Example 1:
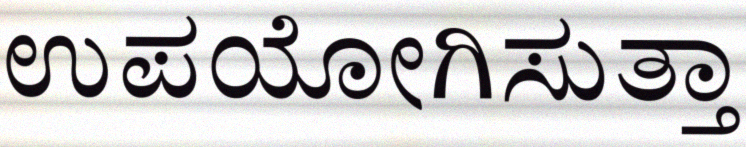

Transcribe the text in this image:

ಉಪಯೋಗಿಸುತ್ತಾ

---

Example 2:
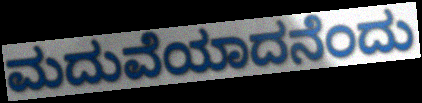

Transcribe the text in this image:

ಮದುವೆಯಾದನೆಂದು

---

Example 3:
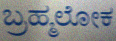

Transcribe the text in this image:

ಬ್ರಹ್ಮಲೋಕ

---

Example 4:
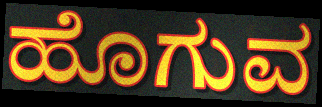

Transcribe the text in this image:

ಹೊಗುವ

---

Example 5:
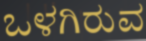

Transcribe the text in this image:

ಒಳಗಿರುವ